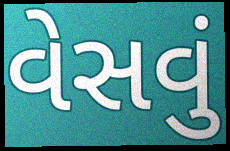
વેસવું